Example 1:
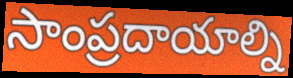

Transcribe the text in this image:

సాంప్రదాయాల్ని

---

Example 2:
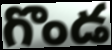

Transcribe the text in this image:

గొండ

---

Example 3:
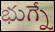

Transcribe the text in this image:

భుగ్నే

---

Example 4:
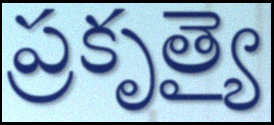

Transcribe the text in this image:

ప్రకృత్యై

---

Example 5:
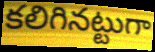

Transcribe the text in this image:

కలిగినట్టుగా